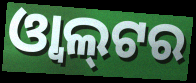
ଓ୍ୱାଲ୍‍ଟର